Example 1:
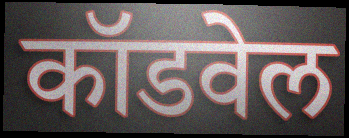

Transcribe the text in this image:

कॉडवेल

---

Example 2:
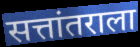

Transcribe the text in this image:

सत्तांतराला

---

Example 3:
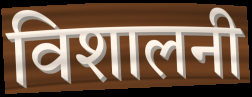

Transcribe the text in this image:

विशालनी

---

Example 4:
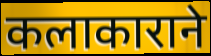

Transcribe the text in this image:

कलाकाराने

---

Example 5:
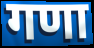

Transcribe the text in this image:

गणा